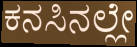
ಕನಸಿನಲ್ಲೇ